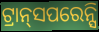
ଟ୍ରାନ୍‌ସପରେନ୍ସି